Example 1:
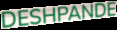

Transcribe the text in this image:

DESHPANDE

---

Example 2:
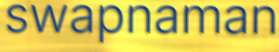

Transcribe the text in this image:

swapnaman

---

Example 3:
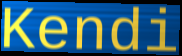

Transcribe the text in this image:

Kendi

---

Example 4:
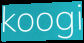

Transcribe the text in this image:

koogi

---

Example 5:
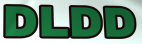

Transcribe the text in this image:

DLDD